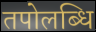
तपोलब्धि